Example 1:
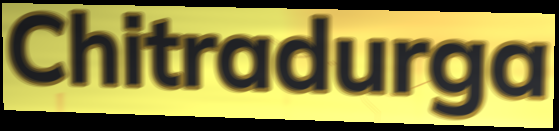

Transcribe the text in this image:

Chitradurga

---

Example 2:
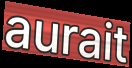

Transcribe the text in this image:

aurait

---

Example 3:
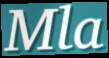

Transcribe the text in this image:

Mla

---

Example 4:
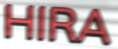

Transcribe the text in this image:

HIRA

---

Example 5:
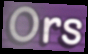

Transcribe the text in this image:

Ors